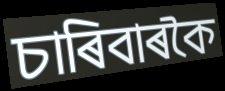
চাৰিবাৰকৈ